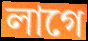
লাগে